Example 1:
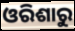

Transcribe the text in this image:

ଓରିଶାରୁ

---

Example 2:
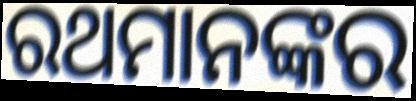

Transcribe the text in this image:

ରଥମାନଙ୍କର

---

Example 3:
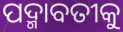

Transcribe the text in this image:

ପଦ୍ମାବତୀକୁ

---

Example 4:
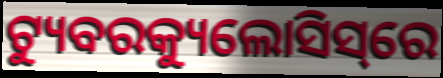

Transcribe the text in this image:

ଟ୍ୟୁବରକ୍ୟୁଲୋସିସ୍‌ରେ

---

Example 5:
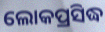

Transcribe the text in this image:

ଲୋକପ୍ରସିଦ୍ଧ